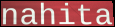
nahita